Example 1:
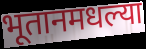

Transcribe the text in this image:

भूतानमधल्या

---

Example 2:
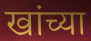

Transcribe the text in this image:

खांच्या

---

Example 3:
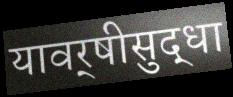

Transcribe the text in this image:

यावर्षीसुद्धा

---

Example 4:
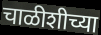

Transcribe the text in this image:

चाळीशीच्या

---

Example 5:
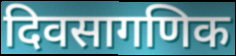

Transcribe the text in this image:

दिवसागणिक